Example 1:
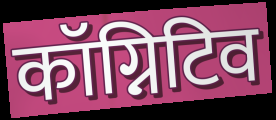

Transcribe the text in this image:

कॉग्निटिव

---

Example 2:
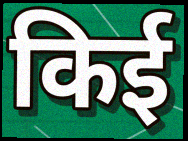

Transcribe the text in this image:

किई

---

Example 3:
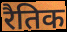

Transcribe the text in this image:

रैतिक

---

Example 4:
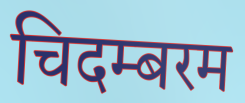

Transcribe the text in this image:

चिदम्बरम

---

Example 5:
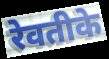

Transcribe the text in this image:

रेवतीके